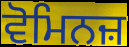
ਵੋਮਿਨਜ਼